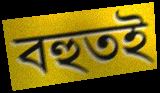
বহুতই